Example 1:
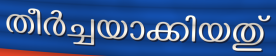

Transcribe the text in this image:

തീർച്ചയാക്കിയതു്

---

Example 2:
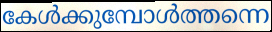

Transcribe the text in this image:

കേൾക്കുമ്പോൾത്തന്നെ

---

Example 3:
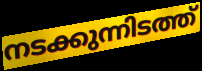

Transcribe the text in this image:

നടക്കുന്നിടത്ത്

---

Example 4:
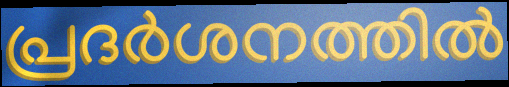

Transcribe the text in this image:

പ്രദർശനത്തിൽ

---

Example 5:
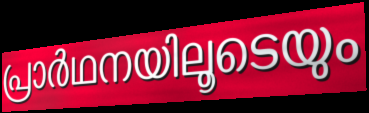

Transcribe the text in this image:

പ്രാർഥനയിലൂടെയും